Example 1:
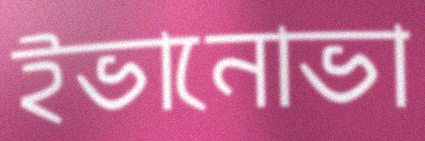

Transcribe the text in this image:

ইভানোভা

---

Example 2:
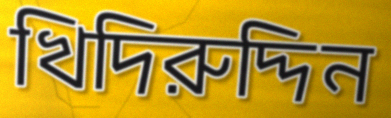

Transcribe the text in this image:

খিদিরুদ্দিন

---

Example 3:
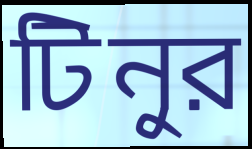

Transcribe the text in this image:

টিনুর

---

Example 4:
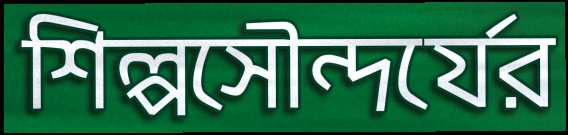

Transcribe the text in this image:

শিল্পসৌন্দর্যের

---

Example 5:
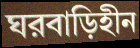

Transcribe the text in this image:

ঘরবাড়িহীন